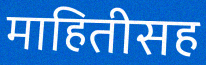
माहितीसह